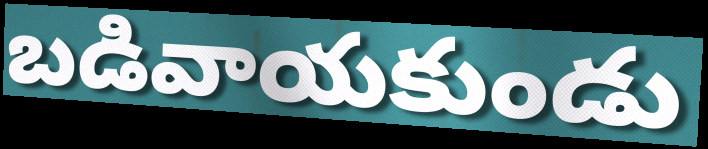
బడివాయకుండు